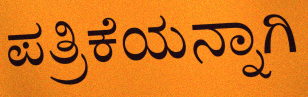
ಪತ್ರಿಕೆಯನ್ನಾಗಿ